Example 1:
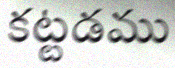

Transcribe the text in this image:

కట్టడము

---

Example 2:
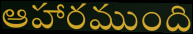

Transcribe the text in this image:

ఆహారముంది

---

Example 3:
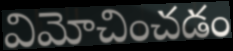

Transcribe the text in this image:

విమోచించడం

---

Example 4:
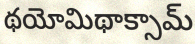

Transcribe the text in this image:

థయోమిథాక్సామ్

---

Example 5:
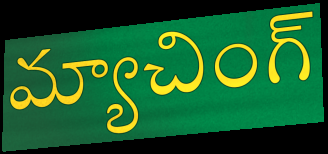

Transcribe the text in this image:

మ్యాచింగ్